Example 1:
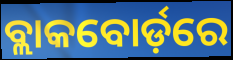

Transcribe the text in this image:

ବ୍ଲାକବୋର୍ଡ଼ରେ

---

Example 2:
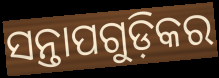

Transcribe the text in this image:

ସନ୍ତାପଗୁଡ଼ିକର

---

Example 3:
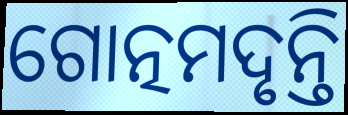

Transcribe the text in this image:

ଗୋତ୍ନମଦୃନ୍ତି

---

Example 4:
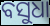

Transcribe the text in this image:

ବସୁଧା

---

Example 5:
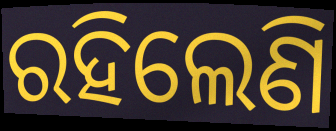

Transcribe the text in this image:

ରହିଲେଣି